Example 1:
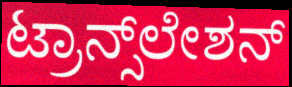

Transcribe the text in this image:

ಟ್ರಾನ್ಸ್‌ಲೇಶನ್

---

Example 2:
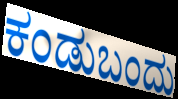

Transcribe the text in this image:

ಕಂಡುಬಂದು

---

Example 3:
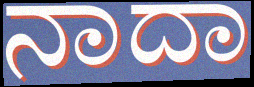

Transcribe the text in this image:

ನಾದಾ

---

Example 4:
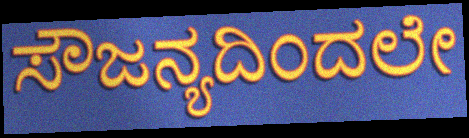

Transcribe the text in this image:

ಸೌಜನ್ಯದಿಂದಲೇ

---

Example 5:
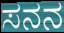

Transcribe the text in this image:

ಸನನ